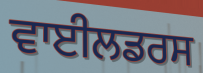
ਵਾਈਲਡਰਸ